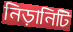
নিড়ানিটি